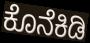
ಕೊನೆಕಿಡಿ